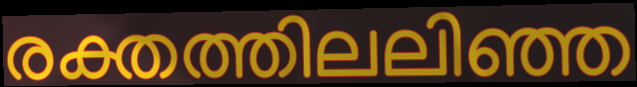
രക്തത്തിലലിഞ്ഞ